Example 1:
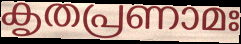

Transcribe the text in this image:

കൃതപ്രണാമഃ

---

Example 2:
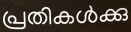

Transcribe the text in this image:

പ്രതികൾക്കു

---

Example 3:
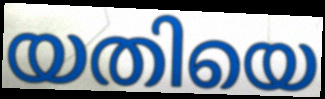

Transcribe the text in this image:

യതിയെ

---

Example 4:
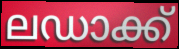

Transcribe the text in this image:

ലഡാക്ക്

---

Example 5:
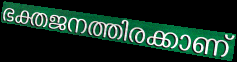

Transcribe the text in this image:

ഭക്തജനത്തിരക്കാണ്